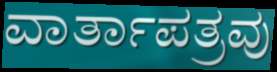
ವಾರ್ತಾಪತ್ರವು